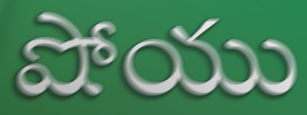
షోయు